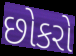
છોકરો